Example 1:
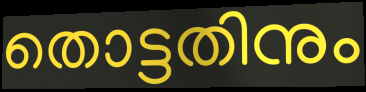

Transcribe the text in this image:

തൊട്ടതിനും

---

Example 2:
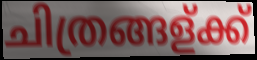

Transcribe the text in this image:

ചിത്രങ്ങള്ക്ക്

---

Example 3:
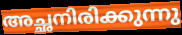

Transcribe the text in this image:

അച്ഛനിരിക്കുന്നു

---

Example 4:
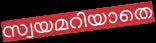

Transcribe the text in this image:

സ്വയമറിയാതെ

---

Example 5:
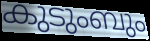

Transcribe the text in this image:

കുടുംബും